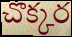
చొక్కర